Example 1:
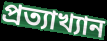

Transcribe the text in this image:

প্ৰত্যাখ্যান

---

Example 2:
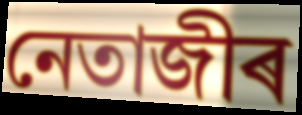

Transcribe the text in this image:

নেতাজীৰ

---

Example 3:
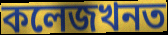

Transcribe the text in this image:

কলেজখনত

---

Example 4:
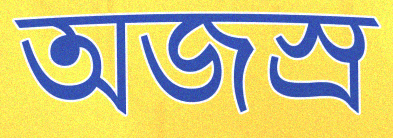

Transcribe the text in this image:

অজস্ৰ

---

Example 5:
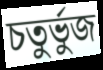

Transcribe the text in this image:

চতুৰ্ভুজ